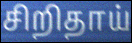
சிறிதாய்